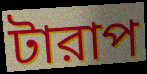
টারাপ